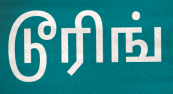
டூரிங்